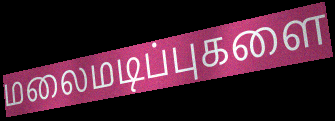
மலைமடிப்புகளை